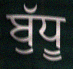
ਬੁੱਧੂ